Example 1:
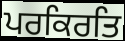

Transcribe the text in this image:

ਪਰਕਿਰਤਿ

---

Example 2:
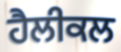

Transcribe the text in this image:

ਹੈਲੀਕਲ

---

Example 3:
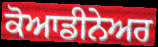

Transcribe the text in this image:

ਕੋਆਡੀਨੇਅਰ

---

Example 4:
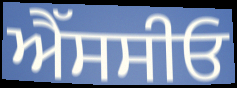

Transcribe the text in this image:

ਐੱਸਸੀਓ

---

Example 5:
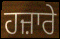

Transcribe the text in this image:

ਹਜ਼ਾਰੇ